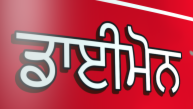
ਡਾਈਮੋਨ